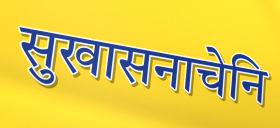
सुखासनाचेनि